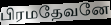
பிரமதேவனே